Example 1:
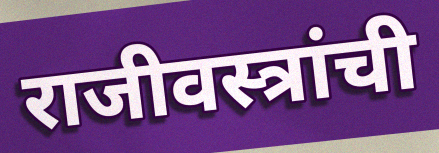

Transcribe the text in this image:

राजीवस्त्रांची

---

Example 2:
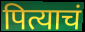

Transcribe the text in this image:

पित्याचं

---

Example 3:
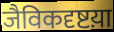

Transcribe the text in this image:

जैविकदृष्टय़ा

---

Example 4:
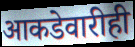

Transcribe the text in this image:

आकडेवारीही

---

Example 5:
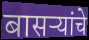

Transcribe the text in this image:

बासऱ्यांचे